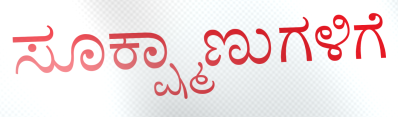
ಸೂಕ್ಷ್ಮಾಣುಗಳಿಗೆ